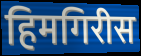
हिमगिरीस